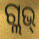
ଗ୍ଲଭ୍